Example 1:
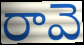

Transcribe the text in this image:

రావె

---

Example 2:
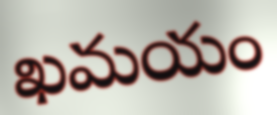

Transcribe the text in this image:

ఖమయం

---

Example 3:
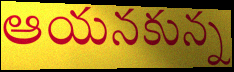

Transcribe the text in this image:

ఆయనకున్న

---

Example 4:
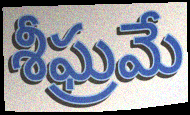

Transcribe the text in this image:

శీఘ్రమే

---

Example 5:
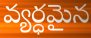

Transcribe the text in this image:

వ్యర్ధమైన